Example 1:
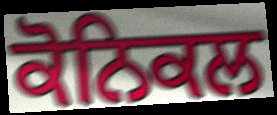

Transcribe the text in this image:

ਕੋਨਿਕਲ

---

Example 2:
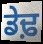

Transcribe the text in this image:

ਡੇਢ਼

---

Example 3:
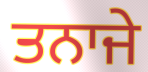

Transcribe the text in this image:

ਤਨਾਜੇ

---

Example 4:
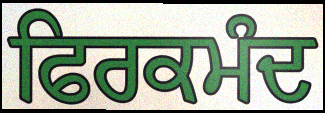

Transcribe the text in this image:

ਫਿਰਕਮੰਦ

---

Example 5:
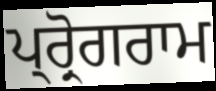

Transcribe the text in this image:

ਪ੍ਰ੍ਰੋਗਰਾਮ